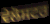
ਵੇਲੋਸਟਰ